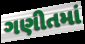
ગણીતમાં